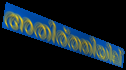
അതിര്ത്തിയില്